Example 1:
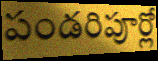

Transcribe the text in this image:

పండరిపూర్లో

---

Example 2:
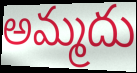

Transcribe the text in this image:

అమ్మదు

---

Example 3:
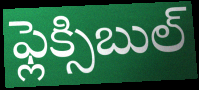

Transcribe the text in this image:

ఫ్లెక్సిబుల్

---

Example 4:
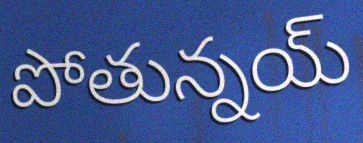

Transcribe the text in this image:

పోతున్నయ్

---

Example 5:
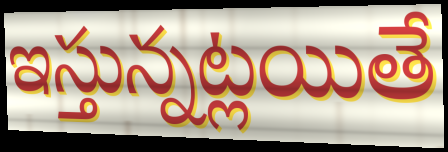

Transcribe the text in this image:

ఇస్తున్నట్లయితే